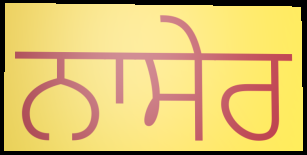
ਨਾਸੇਰ